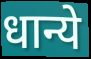
धान्ये